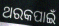
ଥରକପାଇଁ